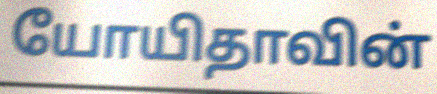
யோயிதாவின்